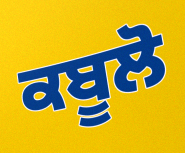
ਕਬੂਲੋ